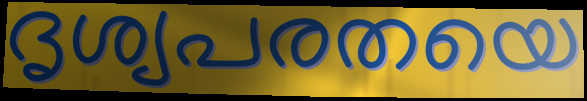
ദൃശ്യപരതയെ